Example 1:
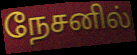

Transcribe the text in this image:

நேசனில்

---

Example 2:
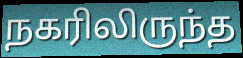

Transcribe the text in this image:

நகரிலிருந்த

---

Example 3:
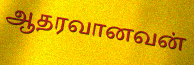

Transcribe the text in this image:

ஆதரவானவன்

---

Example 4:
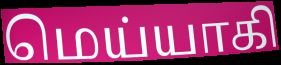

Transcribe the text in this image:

மெய்யாகி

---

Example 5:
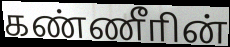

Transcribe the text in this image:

கண்ணீரின்